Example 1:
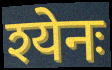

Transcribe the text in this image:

श्येनः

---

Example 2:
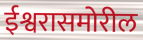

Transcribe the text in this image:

ईश्वरासमोरील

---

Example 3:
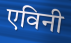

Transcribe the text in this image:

एविनी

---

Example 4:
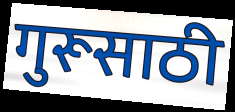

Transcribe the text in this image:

गुरूसाठी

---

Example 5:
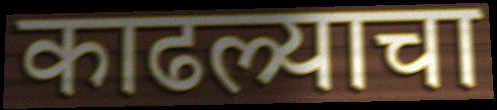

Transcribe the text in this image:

काढल्याचा